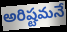
అరిష్టమనే